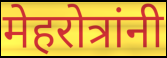
मेहरोत्रांनी